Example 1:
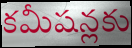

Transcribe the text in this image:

కమీషన్లకు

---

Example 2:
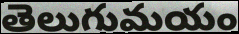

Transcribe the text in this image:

తెలుగుమయం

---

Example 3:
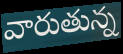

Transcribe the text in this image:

వారుతున్న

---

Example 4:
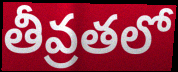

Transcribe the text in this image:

తీవ్రతలో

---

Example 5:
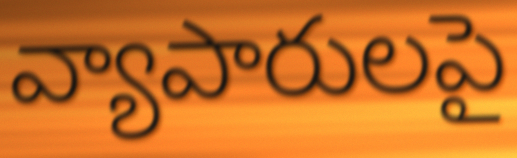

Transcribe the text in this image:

వ్యాపారులపై